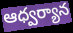
ఆధ్వర్యాన